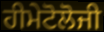
ਹੀਮੇਟੋਲੋਜੀ